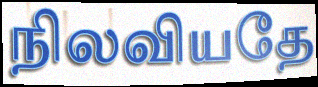
நிலவியதே